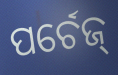
ପର୍ଚେଜ୍